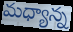
మధ్యాన్న